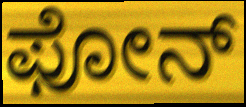
ಫೋನ್